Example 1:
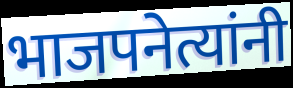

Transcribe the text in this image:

भाजपनेत्यांनी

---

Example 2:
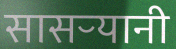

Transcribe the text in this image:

सासऱ्यानी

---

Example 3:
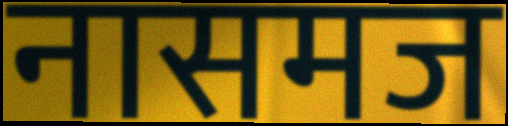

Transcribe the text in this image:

नासमज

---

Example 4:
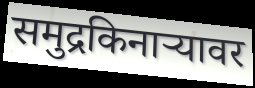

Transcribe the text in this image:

समुद्रकिनाऱ्यावर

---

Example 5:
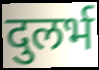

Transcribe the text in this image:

दुलर्भ